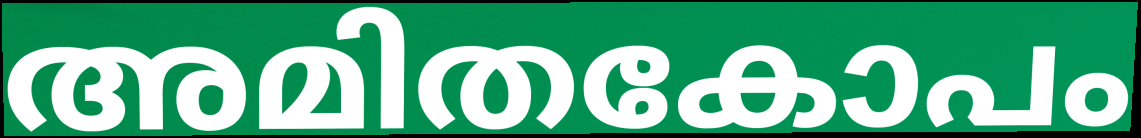
അമിതകോപം